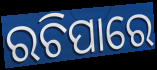
ରଚିପାରେ